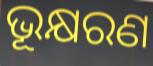
ଭୂକ୍ଷରଣ